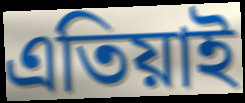
এতিয়াই